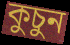
কুচুন